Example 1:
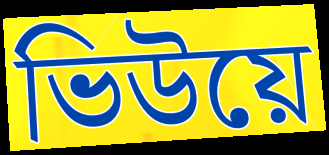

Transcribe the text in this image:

ভিউয়ে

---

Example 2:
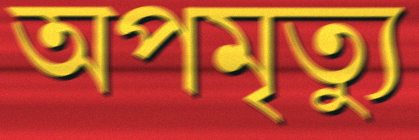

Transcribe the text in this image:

অপমৃত্যু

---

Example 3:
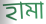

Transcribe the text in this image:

হামা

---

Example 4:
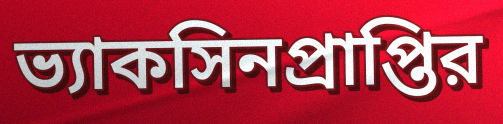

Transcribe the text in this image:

ভ্যাকসিনপ্রাপ্তির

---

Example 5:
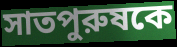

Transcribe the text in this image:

সাতপুরুষকে